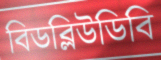
বিডব্লিউডিবি